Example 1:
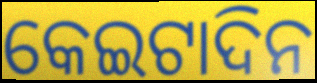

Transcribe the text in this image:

କେଇଟାଦିନ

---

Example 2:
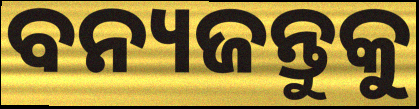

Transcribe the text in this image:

ବନ୍ୟଜନ୍ତୁକୁ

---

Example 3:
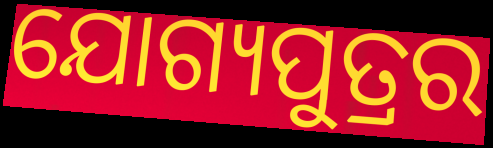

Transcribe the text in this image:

ଯୋଗ୍ୟପୁତ୍ରର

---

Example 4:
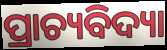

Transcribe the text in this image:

ପ୍ରାଚ୍ୟବିଦ୍ୟା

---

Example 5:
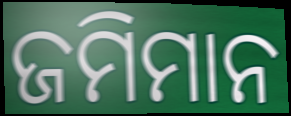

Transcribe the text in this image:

ଜମିମାନ